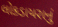
લોકડાયરાનું